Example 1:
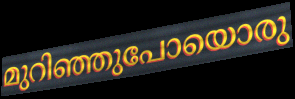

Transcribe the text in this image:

മുറിഞ്ഞുപോയൊരു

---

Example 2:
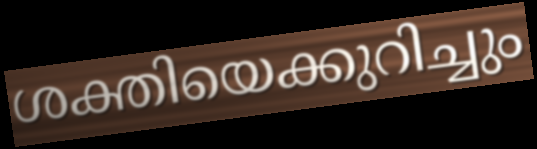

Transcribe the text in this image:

ശക്തിയെക്കുറിച്ചും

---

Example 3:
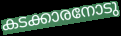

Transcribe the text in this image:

കടക്കാരനോടു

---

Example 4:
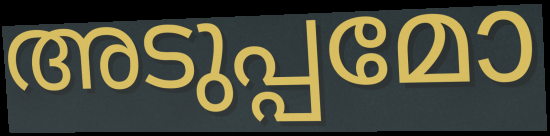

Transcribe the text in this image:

അടുപ്പമോ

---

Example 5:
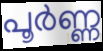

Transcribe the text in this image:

പൂർണ്ണ